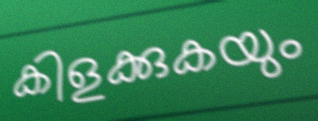
കിളക്കുകയും